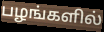
பழங்களில்